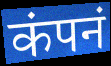
कंपनं